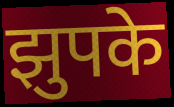
झुपके